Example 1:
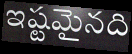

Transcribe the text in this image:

ఇష్టమైనది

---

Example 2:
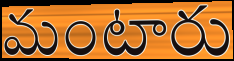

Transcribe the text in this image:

మంటారు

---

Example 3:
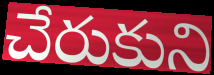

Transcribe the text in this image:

చేరుకుని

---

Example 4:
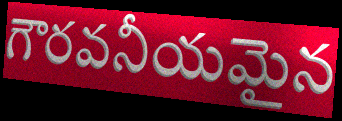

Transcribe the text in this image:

గౌరవనీయమైన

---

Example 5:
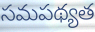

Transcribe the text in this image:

సమపథ్యత